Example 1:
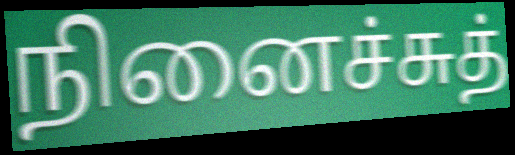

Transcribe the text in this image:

நினைச்சுத்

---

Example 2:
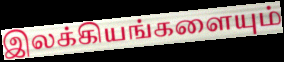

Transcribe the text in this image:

இலக்கியங்களையும்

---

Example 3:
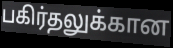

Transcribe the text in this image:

பகிர்தலுக்கான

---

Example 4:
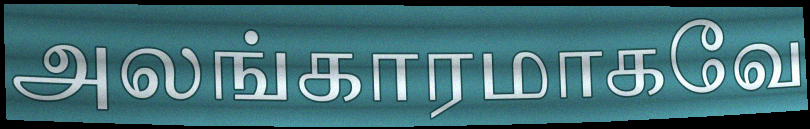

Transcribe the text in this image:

அலங்காரமாகவே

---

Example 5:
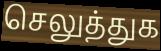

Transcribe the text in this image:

செலுத்துக